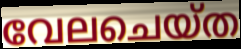
വേലചെയ്ത